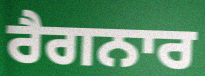
ਰੈਗਨਾਰ